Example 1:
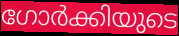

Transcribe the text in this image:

ഗോർക്കിയുടെ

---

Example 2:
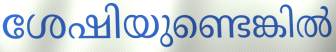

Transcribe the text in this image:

ശേഷിയുണ്ടെങ്കിൽ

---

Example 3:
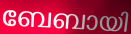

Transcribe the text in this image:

ബേബായി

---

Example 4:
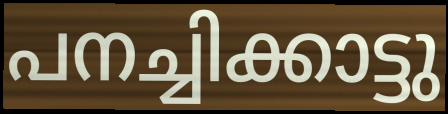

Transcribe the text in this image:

പനച്ചിക്കാട്ടു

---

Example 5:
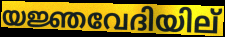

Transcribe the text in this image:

യജ്ഞവേദിയില്